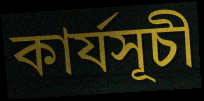
কাৰ্যসূচী